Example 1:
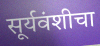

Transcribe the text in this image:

सूर्यवंशीचा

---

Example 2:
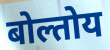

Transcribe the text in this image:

बोल्तोय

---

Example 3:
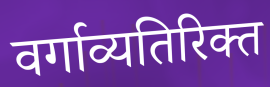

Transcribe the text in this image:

वर्गाव्यतिरिक्त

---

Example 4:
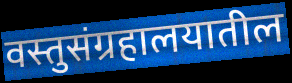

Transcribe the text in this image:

वस्तुसंग्रहालयातील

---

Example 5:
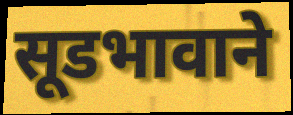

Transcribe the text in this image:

सूडभावाने